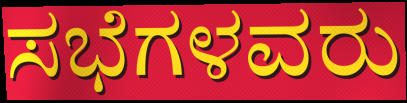
ಸಭೆಗಳವರು